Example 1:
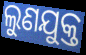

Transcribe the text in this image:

ଲୁଣଯୁକ୍ତ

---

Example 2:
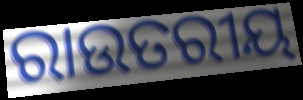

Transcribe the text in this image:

ରାଉତରୀୟ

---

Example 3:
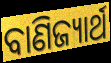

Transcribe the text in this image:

ବାଣିଜ୍ୟାର୍ଥ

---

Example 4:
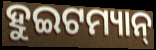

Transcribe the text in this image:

ହୁଇଟମ୍ୟାନ୍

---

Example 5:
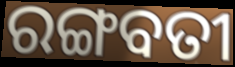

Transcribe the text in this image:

ରଙ୍ଗବତୀ